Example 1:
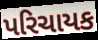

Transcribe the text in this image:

પરિચાયક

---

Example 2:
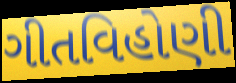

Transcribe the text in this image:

ગીતવિહોણી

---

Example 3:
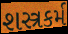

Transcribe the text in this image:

શસ્ત્રકર્મ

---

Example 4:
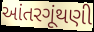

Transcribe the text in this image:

આંતરગૂંથણી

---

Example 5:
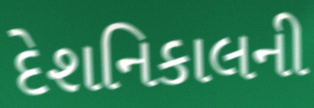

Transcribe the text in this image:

દેશનિકાલની